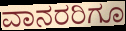
ವಾನರರಿಗೂ